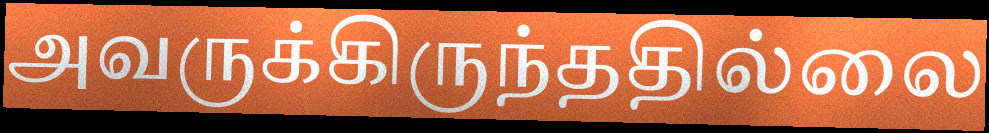
அவருக்கிருந்ததில்லை